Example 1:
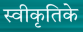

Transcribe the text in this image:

स्वीकृतिके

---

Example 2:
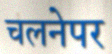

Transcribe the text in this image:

चलनेपर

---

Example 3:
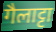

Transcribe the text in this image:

गैलाट्टा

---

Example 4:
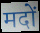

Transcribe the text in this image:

मदों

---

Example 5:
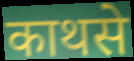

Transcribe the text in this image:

काथसे